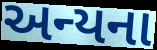
અન્યના